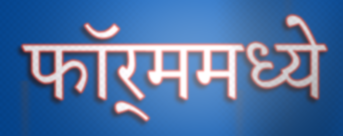
फॉर्ममध्ये